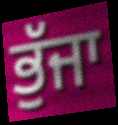
ਭੁੱਜਾ